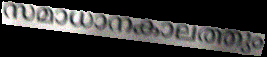
സമാധാനകാലത്തും